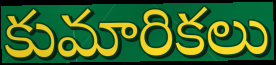
కుమారికలు